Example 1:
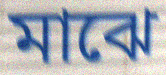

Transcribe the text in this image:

মাঝে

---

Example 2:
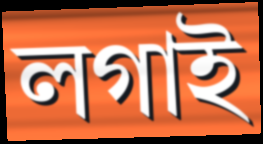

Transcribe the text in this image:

লগাই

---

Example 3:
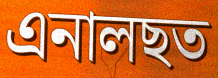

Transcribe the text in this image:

এনালছত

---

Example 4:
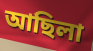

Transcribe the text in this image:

আছিলা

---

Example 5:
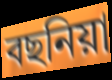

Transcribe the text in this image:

বছনিয়া